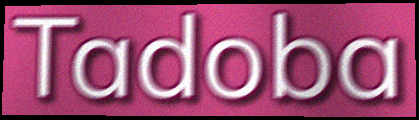
Tadoba